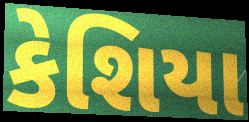
કેશિયા